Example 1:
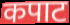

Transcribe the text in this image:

कपाट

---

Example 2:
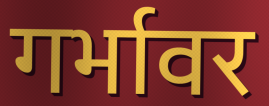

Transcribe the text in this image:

गर्भावर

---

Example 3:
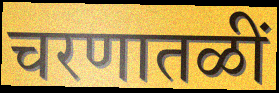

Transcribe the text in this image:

चरणातळीं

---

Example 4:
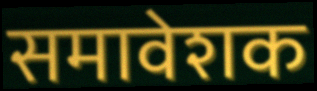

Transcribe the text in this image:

समावेशक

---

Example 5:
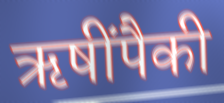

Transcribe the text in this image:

ऋषींपैकी